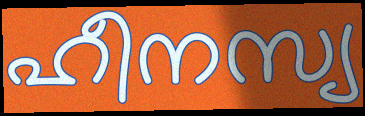
ഹീനസ്യ